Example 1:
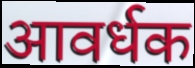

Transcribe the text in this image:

आवर्धक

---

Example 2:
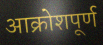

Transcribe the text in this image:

आक्रोशपूर्ण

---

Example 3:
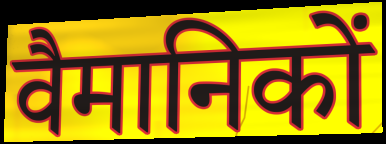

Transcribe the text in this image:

वैमानिकों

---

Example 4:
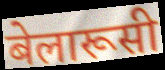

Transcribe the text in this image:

बेलारूसी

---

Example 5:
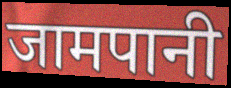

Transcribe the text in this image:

जामपानी